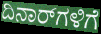
ದಿನಾರ್‌ಗಳಿಗೆ